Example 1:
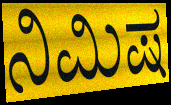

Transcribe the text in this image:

ನಿಮಿಷ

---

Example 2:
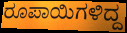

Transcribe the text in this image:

ರೂಪಾಯಿಗಳಿದ್ದ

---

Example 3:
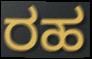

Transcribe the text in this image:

ರಹ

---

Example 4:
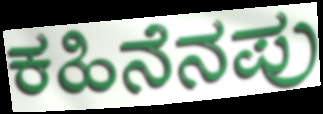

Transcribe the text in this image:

ಕಹಿನೆನಪು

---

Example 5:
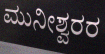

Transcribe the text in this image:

ಮುನೀಶ್ವರರ